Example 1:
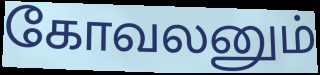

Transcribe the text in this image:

கோவலனும்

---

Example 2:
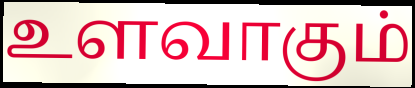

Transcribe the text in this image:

உளவாகும்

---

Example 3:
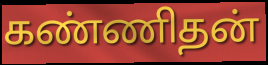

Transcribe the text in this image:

கண்ணிதன்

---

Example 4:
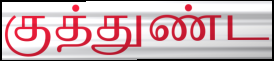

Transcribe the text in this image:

குத்துண்ட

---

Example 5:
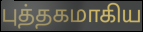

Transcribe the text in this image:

புத்தகமாகிய